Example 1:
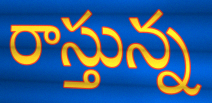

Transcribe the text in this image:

రాస్తున్న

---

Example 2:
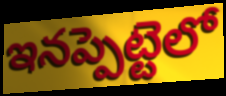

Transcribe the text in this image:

ఇనప్పెట్టెలో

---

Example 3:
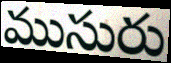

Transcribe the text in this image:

ముసురు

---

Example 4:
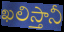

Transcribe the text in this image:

ఖలిస్తానీ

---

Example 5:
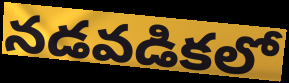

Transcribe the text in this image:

నడవడికలో